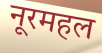
नूरमहल